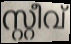
സ്റ്റീവ്